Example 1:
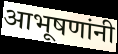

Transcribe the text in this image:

आभूषणांनी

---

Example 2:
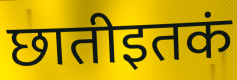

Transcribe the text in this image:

छातीइतकं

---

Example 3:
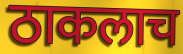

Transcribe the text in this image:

ठाकलाच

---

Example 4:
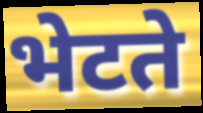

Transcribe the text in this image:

भेटते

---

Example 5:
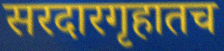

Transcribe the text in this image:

सरदारगृहातच